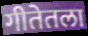
गीतेतला